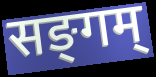
सङ्गम्